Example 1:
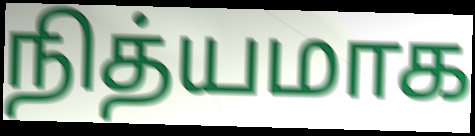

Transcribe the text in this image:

நித்யமாக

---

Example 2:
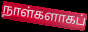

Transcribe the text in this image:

நாள்களாகப்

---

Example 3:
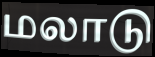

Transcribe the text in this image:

மலாடு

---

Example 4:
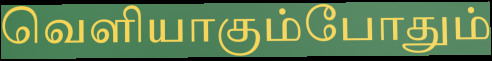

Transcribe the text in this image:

வெளியாகும்போதும்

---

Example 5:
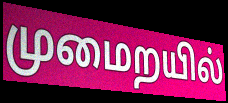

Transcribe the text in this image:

முமைறயில்